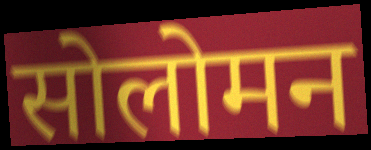
सोलोमन